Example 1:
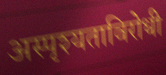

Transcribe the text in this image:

अस्पृश्यताविरोधी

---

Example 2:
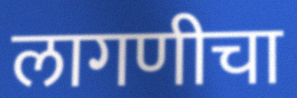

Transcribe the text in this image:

लागणीचा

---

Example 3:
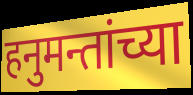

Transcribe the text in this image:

हनुमन्तांच्या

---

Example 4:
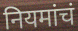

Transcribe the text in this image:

नियमांचं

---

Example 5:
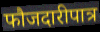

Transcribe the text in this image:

फौजदारीपात्र